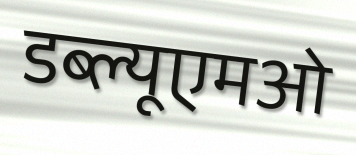
डब्ल्यूएमओ